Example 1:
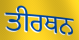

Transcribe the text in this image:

ਤੀਰਥਨ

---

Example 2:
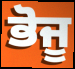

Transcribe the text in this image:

ਭੋਜੂ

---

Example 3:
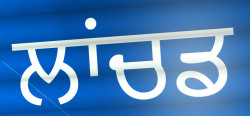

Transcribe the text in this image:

ਲਾਂਚਡ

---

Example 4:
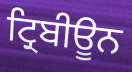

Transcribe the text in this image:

ਟ੍ਰਿਬੀਊਨ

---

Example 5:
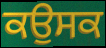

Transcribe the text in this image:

ਕਉਸਕ